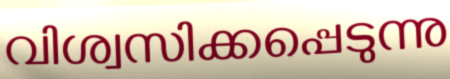
വിശ്വസിക്കപ്പെടുന്നു